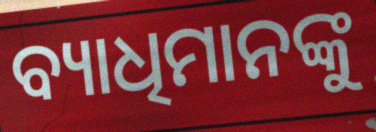
ବ୍ୟାଧିମାନଙ୍କୁ